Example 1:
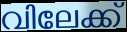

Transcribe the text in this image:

വിലേക്ക്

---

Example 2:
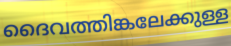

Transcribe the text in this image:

ദൈവത്തിങ്കലേക്കുള്ള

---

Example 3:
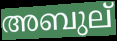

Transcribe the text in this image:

അബുല്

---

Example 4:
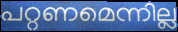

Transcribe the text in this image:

പറ്റണമെന്നില്ല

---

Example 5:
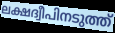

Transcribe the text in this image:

ലക്ഷദ്വീപിനടുത്ത്